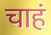
चाहं